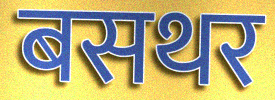
बसथर